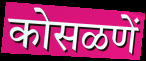
कोसळणें